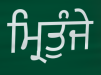
ਮ੍ਰਿਤੁੰਜੇ